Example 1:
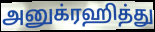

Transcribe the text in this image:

அனுக்ரஹித்து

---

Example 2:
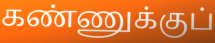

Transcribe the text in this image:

கண்ணுக்குப்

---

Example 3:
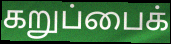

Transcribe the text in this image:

கறுப்பைக்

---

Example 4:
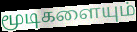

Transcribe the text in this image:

மூடிகளையும்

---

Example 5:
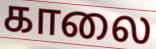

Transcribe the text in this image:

காலை